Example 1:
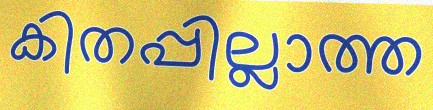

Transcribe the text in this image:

കിതപ്പില്ലാത്ത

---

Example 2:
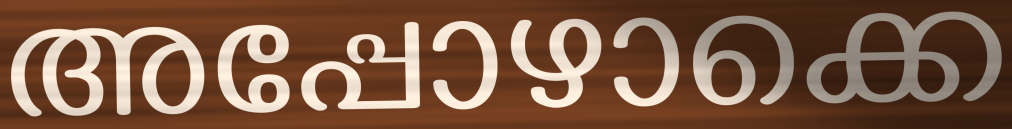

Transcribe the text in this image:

അപ്പോഴാക്കെ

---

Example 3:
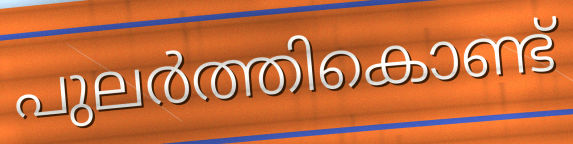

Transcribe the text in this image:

പുലർത്തികൊണ്ട്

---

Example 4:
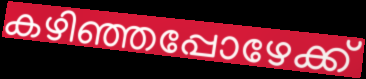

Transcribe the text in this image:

കഴിഞ്ഞപ്പോഴേക്ക്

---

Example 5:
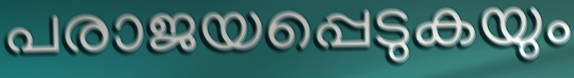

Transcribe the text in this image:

പരാജയപ്പെടുകയും